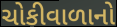
ચોકીવાળાનો